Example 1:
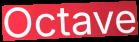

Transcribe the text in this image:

Octave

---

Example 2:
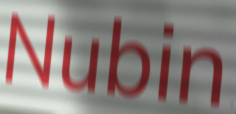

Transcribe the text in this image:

Nubin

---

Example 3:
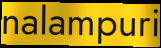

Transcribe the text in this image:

nalampuri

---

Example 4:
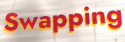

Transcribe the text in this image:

Swapping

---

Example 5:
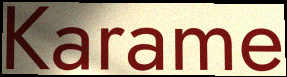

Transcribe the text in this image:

Karame